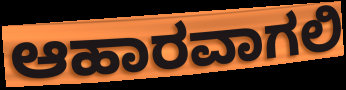
ಆಹಾರವಾಗಲಿ